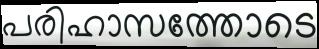
പരിഹാസത്തോടെ